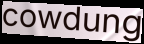
cowdung